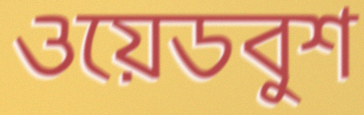
ওয়েডবুশ